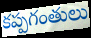
కప్పగంతులు